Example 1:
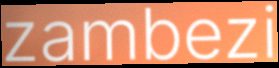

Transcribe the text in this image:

zambezi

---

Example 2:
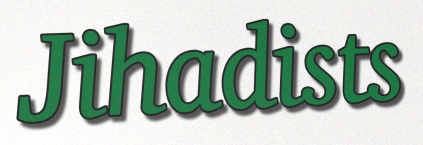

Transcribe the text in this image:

Jihadists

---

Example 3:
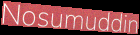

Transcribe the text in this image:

Nosumuddin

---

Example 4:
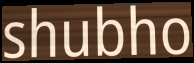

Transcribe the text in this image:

shubho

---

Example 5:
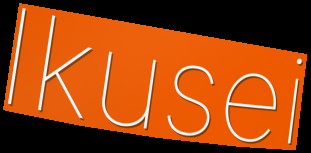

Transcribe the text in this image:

Ikusei